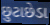
છુટાછેડા